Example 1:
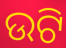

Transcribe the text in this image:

ଉଟି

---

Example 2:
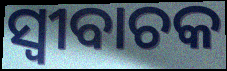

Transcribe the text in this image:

ସ୍ବୀବାଚକ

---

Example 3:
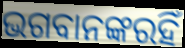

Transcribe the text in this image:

ଭଗବାନଙ୍କରହିଁ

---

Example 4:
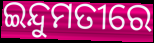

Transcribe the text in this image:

ଇନ୍ଦୁମତୀରେ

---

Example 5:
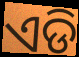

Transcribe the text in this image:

ଏଡି